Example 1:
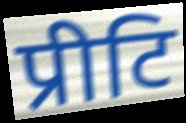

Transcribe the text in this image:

प्रीटि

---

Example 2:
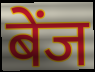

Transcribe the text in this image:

बेंज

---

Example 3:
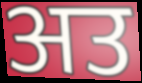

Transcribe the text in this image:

अउ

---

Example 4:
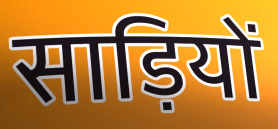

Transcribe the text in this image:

साड़ियों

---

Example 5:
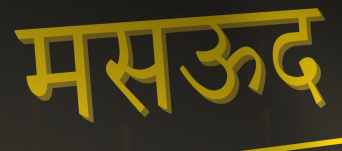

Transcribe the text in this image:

मसऊद